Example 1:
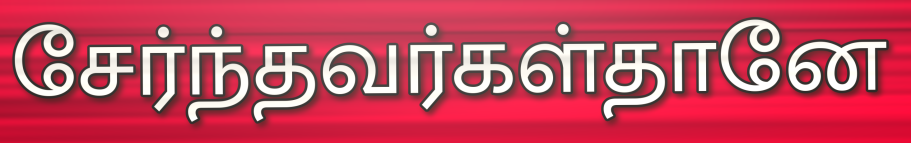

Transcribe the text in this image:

சேர்ந்தவர்கள்தானே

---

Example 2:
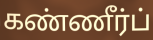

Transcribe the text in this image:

கண்ணீர்ப்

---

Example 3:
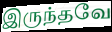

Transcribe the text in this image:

இருந்தவே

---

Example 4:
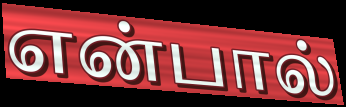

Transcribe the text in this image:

என்பால்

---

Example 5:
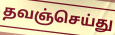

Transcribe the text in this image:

தவஞ்செய்து